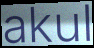
akul